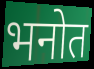
भनोत